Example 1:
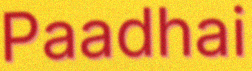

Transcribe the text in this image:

Paadhai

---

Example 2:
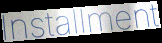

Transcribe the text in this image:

Installment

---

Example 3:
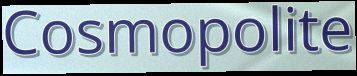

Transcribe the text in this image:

Cosmopolite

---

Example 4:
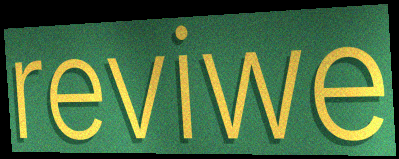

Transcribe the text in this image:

reviwe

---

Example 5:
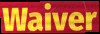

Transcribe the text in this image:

Waiver